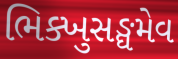
ભિક્ખુસઙ્ઘમેવ